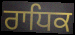
ਰਾਧਿਕ